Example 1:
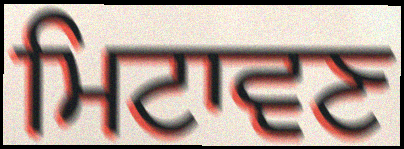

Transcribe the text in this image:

ਮਿਟਾਵਣ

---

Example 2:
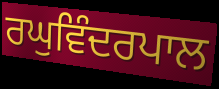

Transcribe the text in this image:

ਰਘੁਵਿੰਦਰਪਾਲ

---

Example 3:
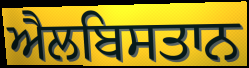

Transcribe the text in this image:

ਐਲਬਿਸਤਾਨ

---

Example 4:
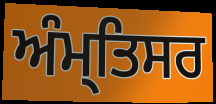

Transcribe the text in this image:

ਅੰਮ੍ਤਿਸਰ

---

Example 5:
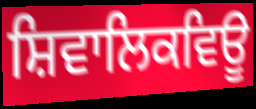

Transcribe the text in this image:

ਸ਼ਿਵਾਲਿਕਵਿਊ